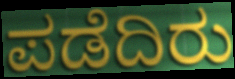
ಪಡೆದಿರು